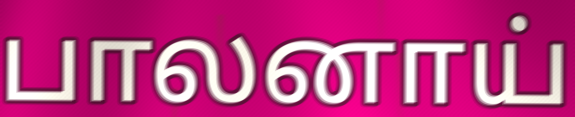
பாலனாய்